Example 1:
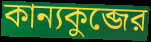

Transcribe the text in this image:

কান্যকুব্জের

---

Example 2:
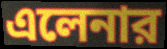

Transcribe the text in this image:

এলেনার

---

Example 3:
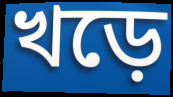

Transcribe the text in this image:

খড়ে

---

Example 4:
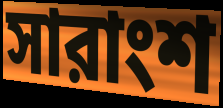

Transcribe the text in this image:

সারাংশ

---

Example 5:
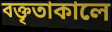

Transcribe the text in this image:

বক্তৃতাকালে